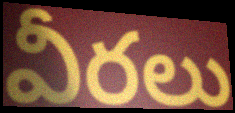
వీరలు